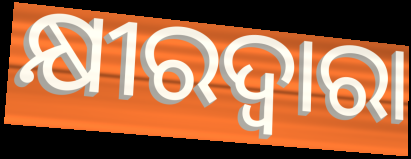
କ୍ଷୀରଦ୍ଵାରା